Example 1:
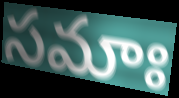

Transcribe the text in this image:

సమాః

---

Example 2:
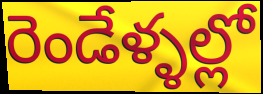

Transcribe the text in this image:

రెండేళ్ళల్లో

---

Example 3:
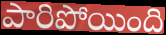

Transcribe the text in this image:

పారిపోయింది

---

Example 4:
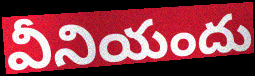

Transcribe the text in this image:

వీనియందు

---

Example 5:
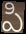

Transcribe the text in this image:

పి